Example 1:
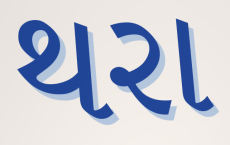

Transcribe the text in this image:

થરા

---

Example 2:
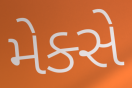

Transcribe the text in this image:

મેક્સે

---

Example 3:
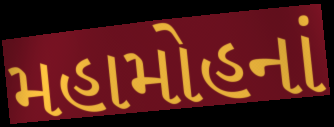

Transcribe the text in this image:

મહામોહનાં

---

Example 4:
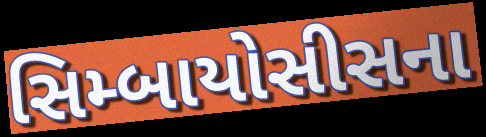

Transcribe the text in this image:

સિમ્બાયોસીસના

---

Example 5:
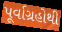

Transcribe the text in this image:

પૂર્વાગ્રહોથી